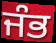
ਜੰਭ